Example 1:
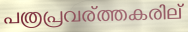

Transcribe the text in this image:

പത്രപ്രവര്ത്തകരില്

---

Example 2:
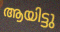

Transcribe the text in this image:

ആയിട്ടു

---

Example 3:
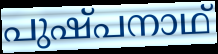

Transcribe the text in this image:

പുഷ്പനാഥ്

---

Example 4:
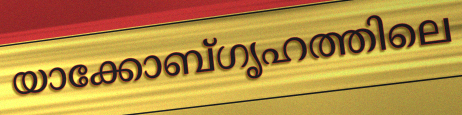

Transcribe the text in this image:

യാക്കോബ്ഗൃഹത്തിലെ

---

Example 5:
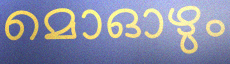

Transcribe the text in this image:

മൊഓഴും